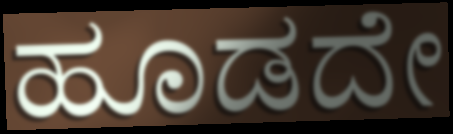
ಹೂಡದೇ